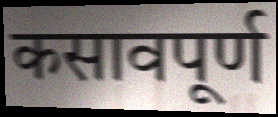
कसावपूर्ण